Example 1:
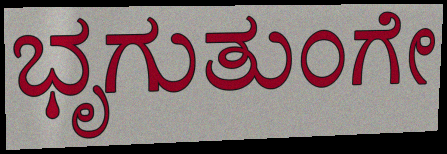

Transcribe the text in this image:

ಭೃಗುತುಂಗೇ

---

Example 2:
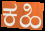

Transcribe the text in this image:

ಕಹಿ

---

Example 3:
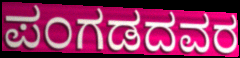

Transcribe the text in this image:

ಪಂಗಡದವರ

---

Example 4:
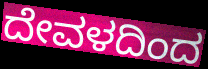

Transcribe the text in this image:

ದೇವಳದಿಂದ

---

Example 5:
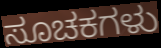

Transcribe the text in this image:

ಸೂಚಕಗಳು